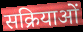
सक्रियाओं